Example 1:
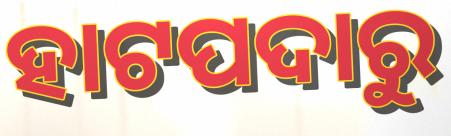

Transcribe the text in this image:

ହାଟପଦାରୁ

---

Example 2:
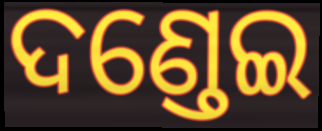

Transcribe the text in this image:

ଦଣ୍ଡେଇ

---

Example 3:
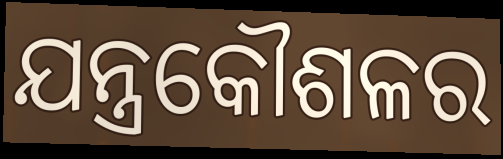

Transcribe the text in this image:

ଯନ୍ତ୍ରକୌଶଳର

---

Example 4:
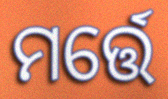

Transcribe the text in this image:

ମର୍ତ୍ତେ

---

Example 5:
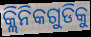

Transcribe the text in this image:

କ୍ଲିନିକଗୁଡିକୁ